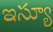
ఇస్యూ